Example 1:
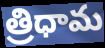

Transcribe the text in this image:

త్రిధామ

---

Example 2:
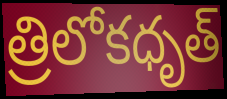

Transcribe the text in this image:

త్రిలోకధృత్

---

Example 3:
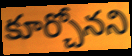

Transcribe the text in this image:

కూర్చోనని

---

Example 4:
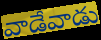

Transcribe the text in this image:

వాడేవాడు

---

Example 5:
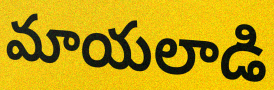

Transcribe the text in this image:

మాయలాడి